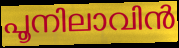
പൂനിലാവിൻ